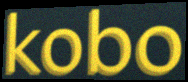
kobo